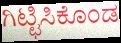
ಗಿಟ್ಟಿಸಿಕೊಂಡ